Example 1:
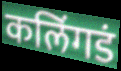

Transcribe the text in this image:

कलिंगडं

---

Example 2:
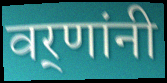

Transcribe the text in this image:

वर्णांनी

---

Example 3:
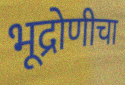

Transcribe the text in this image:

भूद्रोणीचा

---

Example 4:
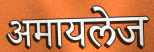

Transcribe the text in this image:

अमायलेज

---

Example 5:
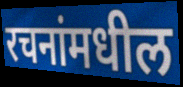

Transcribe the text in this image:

रचनांमधील